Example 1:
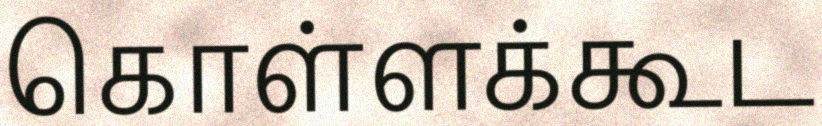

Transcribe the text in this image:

கொள்ளக்கூட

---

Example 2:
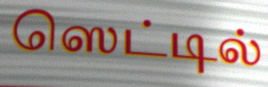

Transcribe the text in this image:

ஸெட்டில்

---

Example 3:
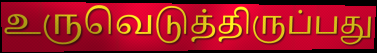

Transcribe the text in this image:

உருவெடுத்திருப்பது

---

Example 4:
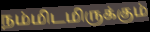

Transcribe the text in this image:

நம்மிடமிருக்கும்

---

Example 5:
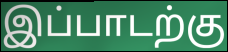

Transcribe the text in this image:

இப்பாடற்கு